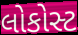
લોકોસ્ટ